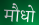
मौधो